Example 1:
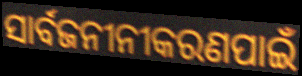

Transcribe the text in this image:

ସାର୍ବଜନୀନୀକରଣପାଇଁ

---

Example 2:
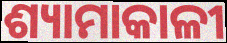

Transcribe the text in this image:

ଶ୍ୟାମାକାଳୀ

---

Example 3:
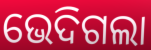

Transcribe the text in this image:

ଭେଦିଗଲା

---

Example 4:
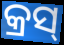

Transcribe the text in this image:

କ୍ରସ୍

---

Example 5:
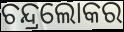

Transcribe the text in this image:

ଚନ୍ଦ୍ରଲୋକର